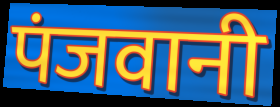
पंजवानी